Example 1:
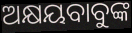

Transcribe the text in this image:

ଅକ୍ଷୟବାବୁଙ୍କ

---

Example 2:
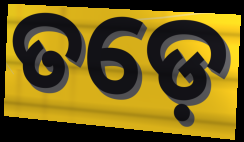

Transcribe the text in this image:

ତଡ଼େ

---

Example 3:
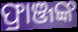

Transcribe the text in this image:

ଫ୍ରାଞ୍ଜଙ୍କ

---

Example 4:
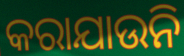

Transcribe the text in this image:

କରାଯାଉନି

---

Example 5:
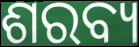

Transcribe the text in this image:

ଶରବ୍ୟ